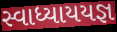
સ્વાધ્યાયયજ્ઞ